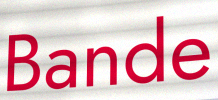
Bande